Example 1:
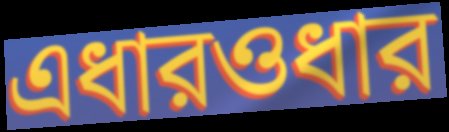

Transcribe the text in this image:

এধারওধার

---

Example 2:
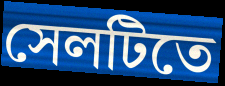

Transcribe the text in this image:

সেলটিতে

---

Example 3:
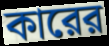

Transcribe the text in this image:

কারের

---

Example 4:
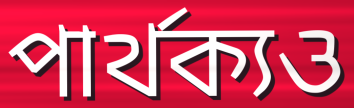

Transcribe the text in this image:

পার্থক্যও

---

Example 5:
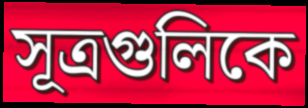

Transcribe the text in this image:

সূত্রগুলিকে